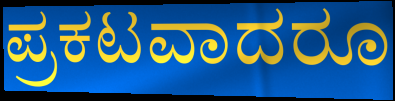
ಪ್ರಕಟವಾದರೂ